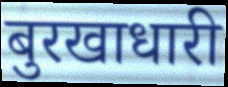
बुरखाधारी